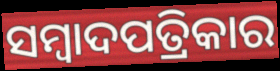
ସମ୍ବାଦପତ୍ରିକାର